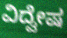
ವಿದ್ವೇಷ